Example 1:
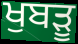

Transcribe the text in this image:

ਖੁਬੜੂ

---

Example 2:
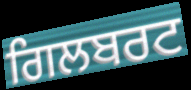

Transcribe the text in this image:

ਗਿਲਬਰਟ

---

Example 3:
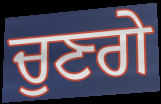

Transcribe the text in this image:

ਚੁਣਗੇ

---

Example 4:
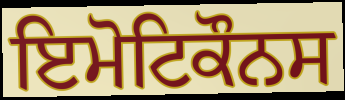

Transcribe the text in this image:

ਇਮੋਟਿਕੌਨਸ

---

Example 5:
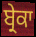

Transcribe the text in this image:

ਬ੍ਰੇਕਾ